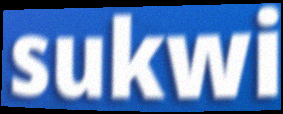
sukwi